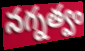
నగ్నత్వం